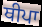
ਥੀਪਾ